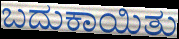
ಬದುಕಾಯಿತು